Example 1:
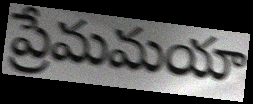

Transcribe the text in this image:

ప్రేమమయా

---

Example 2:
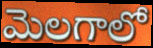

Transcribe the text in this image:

మెలగాలో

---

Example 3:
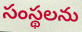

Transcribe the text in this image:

సంస్థలను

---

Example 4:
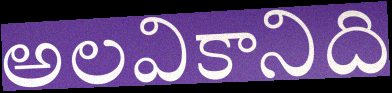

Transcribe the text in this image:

అలవికానిది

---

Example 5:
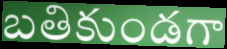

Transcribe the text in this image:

బతికుండగా